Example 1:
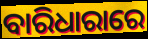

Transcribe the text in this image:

ବାରିଧାରାରେ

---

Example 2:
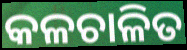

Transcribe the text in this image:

କଳଚାଳିତ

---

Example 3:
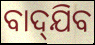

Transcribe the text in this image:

ବାଦ୍‌ଯିବ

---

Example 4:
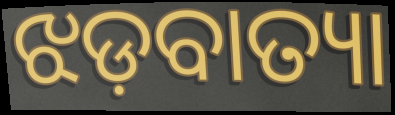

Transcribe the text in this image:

ଝଡ଼ବାତ୍ୟା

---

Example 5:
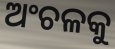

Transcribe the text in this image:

ଅଂଚଳକୁ